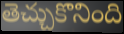
తెచ్చుకొనింది